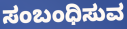
ಸಂಬಂಧಿಸುವ